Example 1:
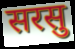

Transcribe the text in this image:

सरसु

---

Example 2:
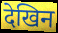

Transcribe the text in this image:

देखिन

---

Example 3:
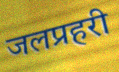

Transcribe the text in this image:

जलप्रहरी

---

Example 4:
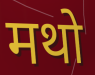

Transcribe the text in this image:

मथो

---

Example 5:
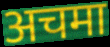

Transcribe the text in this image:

अचमा